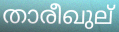
താരീഖുല്